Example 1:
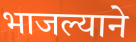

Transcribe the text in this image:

भाजल्याने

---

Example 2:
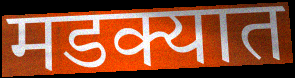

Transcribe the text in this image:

मडक्यात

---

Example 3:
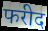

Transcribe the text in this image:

फरीद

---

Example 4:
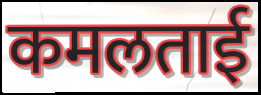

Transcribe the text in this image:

कमलताई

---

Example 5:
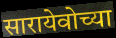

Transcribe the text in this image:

सारायेवोच्या